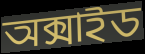
অক্সাইড